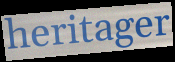
heritager